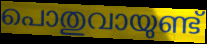
പൊതുവായുണ്ട്